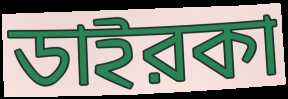
ডাইরকা